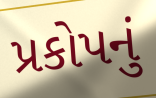
પ્રકોપનું